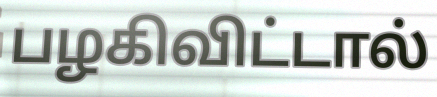
பழகிவிட்டால்